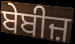
ਬੇਬੀਜ਼